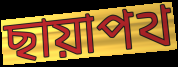
ছায়াপথ